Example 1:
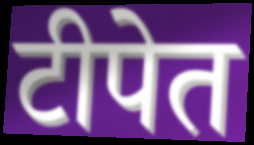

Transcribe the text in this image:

टीपेत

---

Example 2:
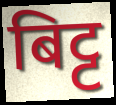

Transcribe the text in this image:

बिट्ट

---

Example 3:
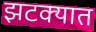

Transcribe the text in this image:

झटक्‍यात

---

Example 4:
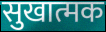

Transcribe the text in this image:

सुखात्मक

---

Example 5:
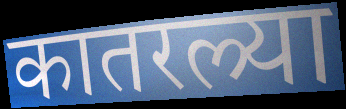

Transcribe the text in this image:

कातरल्या